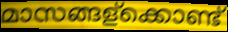
മാസങ്ങള്ക്കൊണ്ട്